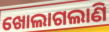
ଖୋଲାଗଲାଣି